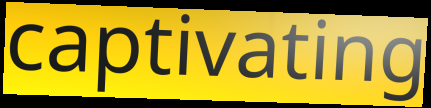
captivating